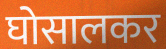
घोसालकर